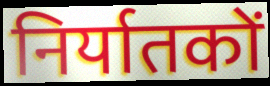
निर्यातकों